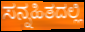
ಸನ್ನಹಿತದಲ್ಲಿ